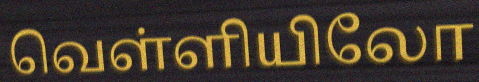
வெள்ளியிலோ